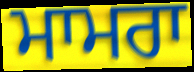
ਮਾਮਰਾ